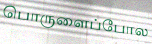
பொருளைப்போல